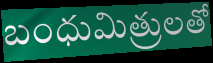
బంధుమిత్రులతో